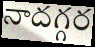
నాదగ్గర